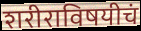
शरीराविषयीचं